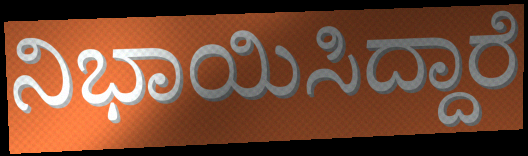
ನಿಭಾಯಿಸಿದ್ದಾರೆ